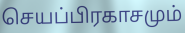
செயப்பிரகாசமும்